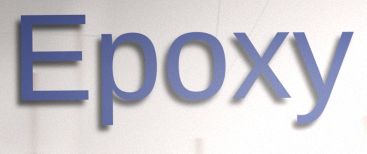
Epoxy